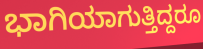
ಭಾಗಿಯಾಗುತ್ತಿದ್ದರೂ